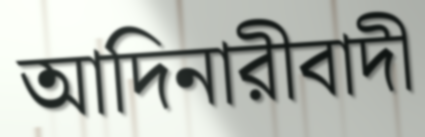
আদিনারীবাদী